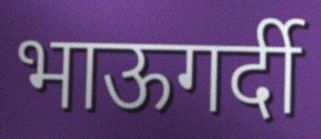
भाऊगर्दी